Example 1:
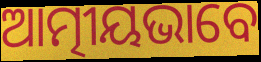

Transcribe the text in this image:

ଆତ୍ମୀୟଭାବେ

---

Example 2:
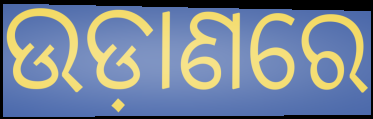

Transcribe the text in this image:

ଉଡ଼ାଣରେ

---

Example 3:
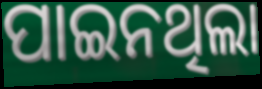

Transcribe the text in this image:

ପାଇନଥିଲା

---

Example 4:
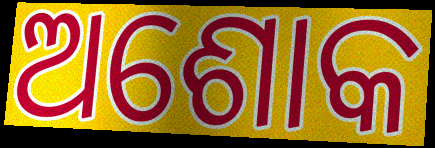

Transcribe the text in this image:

ଅଶୋକ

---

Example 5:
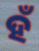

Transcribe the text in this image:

ହଁ